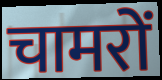
चामरों